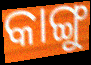
କାଙ୍ଗୁ